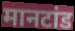
मानटांड